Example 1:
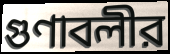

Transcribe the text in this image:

গুণাবলীর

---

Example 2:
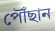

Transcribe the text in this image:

পৌঁছান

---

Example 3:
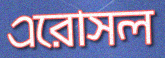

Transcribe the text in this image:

এরোসল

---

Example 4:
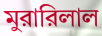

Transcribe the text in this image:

মুরারিলাল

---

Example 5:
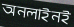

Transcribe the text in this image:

অনলাইনই